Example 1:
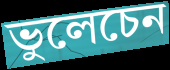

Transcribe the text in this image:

ভুলেচেন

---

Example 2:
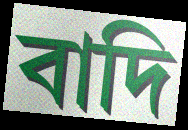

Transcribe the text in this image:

বাদি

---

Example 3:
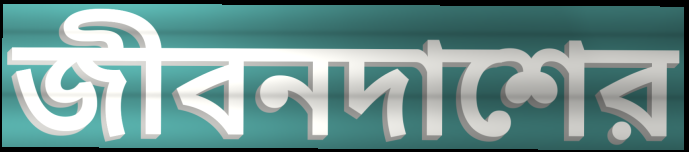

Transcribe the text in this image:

জীবনদাশের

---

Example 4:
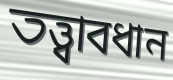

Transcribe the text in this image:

তত্ত্বাবধান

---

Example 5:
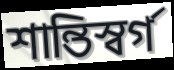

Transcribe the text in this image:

শান্তিস্বর্গ